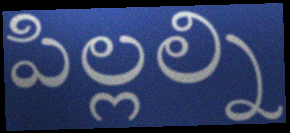
పిల్లల్ని